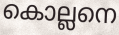
കൊല്ലനെ